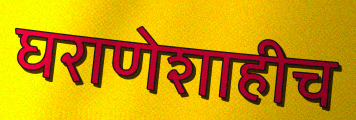
घराणेशाहीच